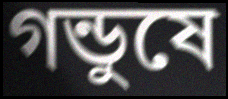
গন্ডুষে